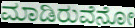
ಮಾಡಿರುವೆನೋ